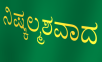
ನಿಷ್ಕಲ್ಮಶವಾದ